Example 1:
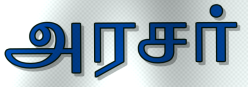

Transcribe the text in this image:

அரசர்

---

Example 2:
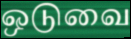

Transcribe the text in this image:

ஒடுவை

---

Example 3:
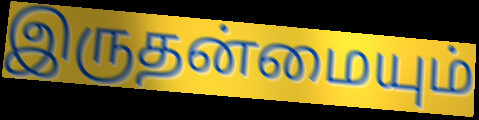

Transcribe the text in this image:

இருதன்மையும்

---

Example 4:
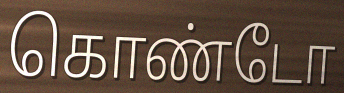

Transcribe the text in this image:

கொண்டோ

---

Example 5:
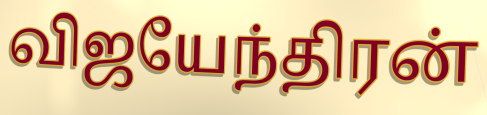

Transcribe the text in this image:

விஜயேந்திரன்